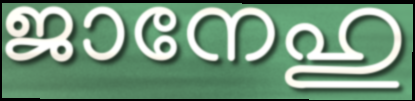
ജാനേഹു